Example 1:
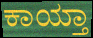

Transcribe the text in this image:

ಕಾಯ್ತಾ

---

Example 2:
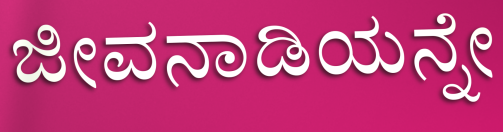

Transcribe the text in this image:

ಜೀವನಾಡಿಯನ್ನೇ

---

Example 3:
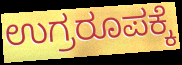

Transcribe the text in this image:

ಉಗ್ರರೂಪಕ್ಕೆ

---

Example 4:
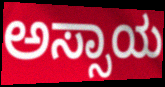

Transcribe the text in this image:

ಅಸ್ಸಾಯ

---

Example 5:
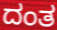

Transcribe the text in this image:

ದಂತ